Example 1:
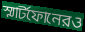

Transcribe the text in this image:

স্মার্টফোনেরও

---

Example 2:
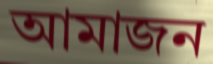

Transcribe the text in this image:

আমাজন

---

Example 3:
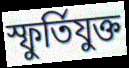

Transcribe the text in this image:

স্ফুর্তিযুক্ত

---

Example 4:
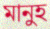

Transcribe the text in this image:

মানুহ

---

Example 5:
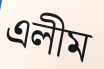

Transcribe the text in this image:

এলীম